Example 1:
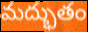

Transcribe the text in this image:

మద్భుతం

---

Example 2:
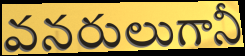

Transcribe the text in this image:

వనరులుగానీ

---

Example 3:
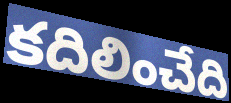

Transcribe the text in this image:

కదిలించేది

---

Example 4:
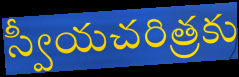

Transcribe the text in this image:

స్వీయచరిత్రకు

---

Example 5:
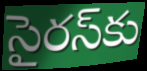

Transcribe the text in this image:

సైరస్‌కు